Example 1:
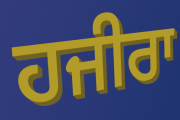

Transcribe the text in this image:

ਹਜੀਰਾ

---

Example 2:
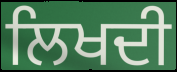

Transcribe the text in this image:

ਲਿਖਦੀ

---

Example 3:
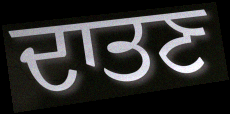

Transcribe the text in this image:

ਦਾਤਣ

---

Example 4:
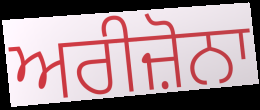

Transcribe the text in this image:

ਅਰੀਜ਼ੋਨਾ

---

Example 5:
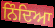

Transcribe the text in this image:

ਨਿੰਦਿਆ